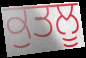
ਕੁਤਲੂ